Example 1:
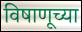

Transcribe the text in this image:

विषाणूच्या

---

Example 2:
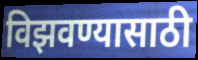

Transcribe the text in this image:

विझवण्यासाठी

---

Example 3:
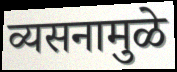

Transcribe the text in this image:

व्यसनामुळे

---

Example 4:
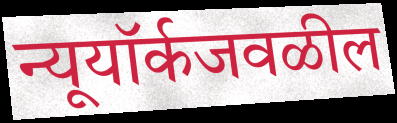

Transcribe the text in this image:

न्यूयॉर्कजवळील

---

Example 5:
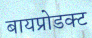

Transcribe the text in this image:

बायप्रोडक्ट